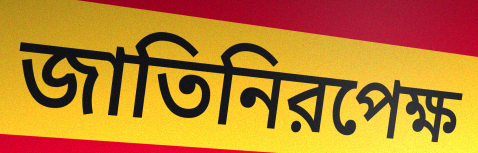
জাতিনিরপেক্ষ